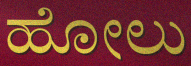
ಹೋಲು